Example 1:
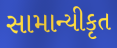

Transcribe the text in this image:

સામાન્યીકૃત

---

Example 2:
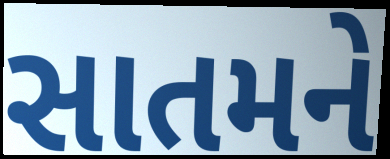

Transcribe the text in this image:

સાતમને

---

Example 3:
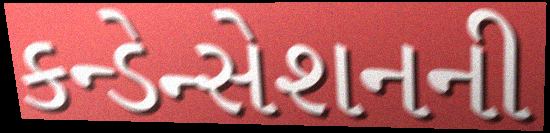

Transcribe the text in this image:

કન્ડેન્સેશનની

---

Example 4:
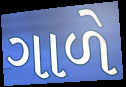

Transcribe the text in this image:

ગાળે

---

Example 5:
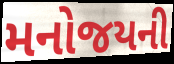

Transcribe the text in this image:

મનોજયની